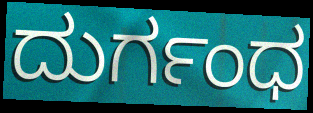
ದುರ್ಗಂಧ